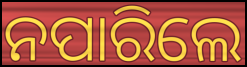
ନପାରିଲେ